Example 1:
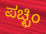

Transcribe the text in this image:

ಪಚ್ಛಿಂ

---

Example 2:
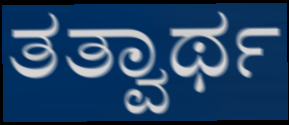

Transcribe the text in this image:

ತತ್ವಾರ್ಥ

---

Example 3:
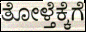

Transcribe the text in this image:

ತೋಳ್ತೆಕ್ಕೆಗೆ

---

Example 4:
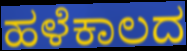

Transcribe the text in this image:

ಹಳೆಕಾಲದ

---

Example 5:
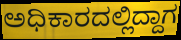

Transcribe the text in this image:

ಅಧಿಕಾರದಲ್ಲಿದ್ದಾಗ